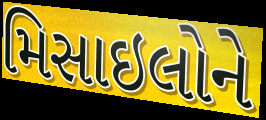
મિસાઇલોને